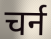
चर्न